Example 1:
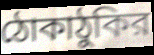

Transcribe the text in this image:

ঠোকাঠুকির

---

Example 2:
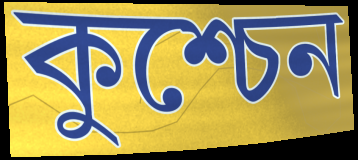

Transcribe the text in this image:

কুশ্চেন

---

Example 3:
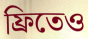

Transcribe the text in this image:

ফ্রিতেও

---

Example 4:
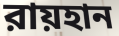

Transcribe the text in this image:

রায়হান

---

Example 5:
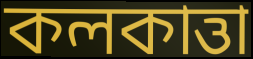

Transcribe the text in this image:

কলকাত্তা